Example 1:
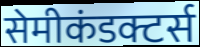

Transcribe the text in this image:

सेमीकंडक्टर्स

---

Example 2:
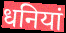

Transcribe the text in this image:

धनियां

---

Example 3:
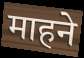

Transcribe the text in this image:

माहने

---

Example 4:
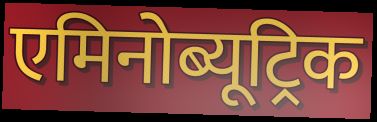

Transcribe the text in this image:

एमिनोब्यूट्रिक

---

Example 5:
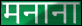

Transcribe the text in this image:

मनाना